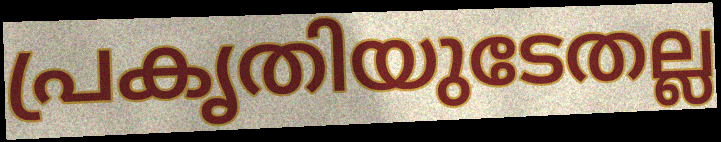
പ്രകൃതിയുടേതല്ല